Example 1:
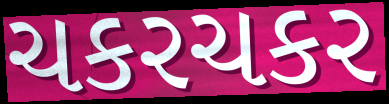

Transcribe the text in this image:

ચકરચકર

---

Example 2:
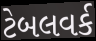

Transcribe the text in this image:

ટેબલવર્ક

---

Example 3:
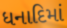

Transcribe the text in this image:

ધનાદિમાં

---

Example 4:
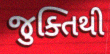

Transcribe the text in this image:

જુક્તિથી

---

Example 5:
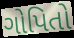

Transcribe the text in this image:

ગોપિતો